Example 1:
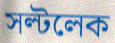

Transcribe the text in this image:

সল্টলেক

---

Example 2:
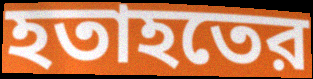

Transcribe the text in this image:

হতাহতের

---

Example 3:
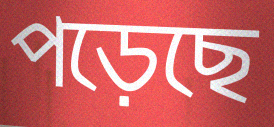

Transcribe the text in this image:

পড়েছে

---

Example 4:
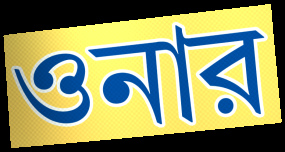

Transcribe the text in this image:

ওনার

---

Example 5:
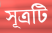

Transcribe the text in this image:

সূত্রটি